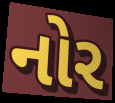
નોર